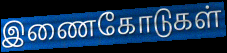
இணைகோடுகள்